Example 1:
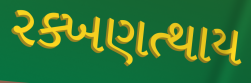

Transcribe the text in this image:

રક્ખણત્થાય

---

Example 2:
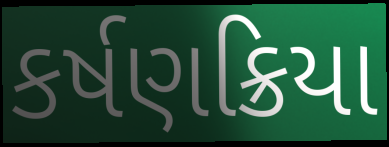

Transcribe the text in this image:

કર્ષણક્રિયા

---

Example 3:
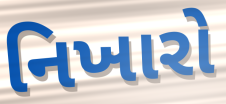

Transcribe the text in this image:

નિખારો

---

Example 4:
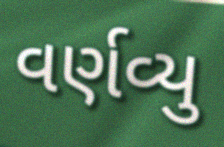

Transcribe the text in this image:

વર્ણવ્યુ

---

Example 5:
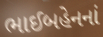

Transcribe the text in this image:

ભાઈબહેનનાં